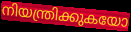
നിയന്ത്രിക്കുകയോ